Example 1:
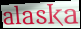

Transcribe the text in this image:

alaska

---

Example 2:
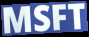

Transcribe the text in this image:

MSFT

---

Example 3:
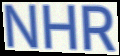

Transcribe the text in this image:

NHR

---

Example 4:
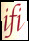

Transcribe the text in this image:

ifi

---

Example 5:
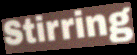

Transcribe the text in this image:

Stirring